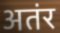
अतंर